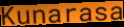
Kunarasa